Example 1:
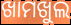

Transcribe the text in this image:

ଖାମଖୁଲ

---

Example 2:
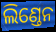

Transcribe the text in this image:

ଲିଣ୍ଡେନ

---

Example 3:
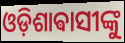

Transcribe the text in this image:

ଓଡ଼ିଶାଵାସୀଙ୍କୁ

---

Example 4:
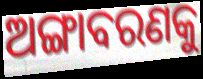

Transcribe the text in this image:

ଅଙ୍ଗାବରଣକୁ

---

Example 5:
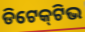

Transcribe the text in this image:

ଡିଟେକ୍‍ଟିଭ